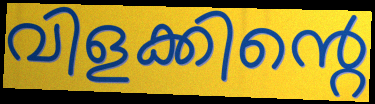
വിളക്കിന്റെ